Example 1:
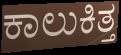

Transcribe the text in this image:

ಕಾಲುಕಿತ್ತ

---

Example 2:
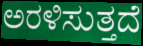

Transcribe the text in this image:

ಅರಳಿಸುತ್ತದೆ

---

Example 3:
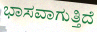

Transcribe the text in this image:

ಭಾಸವಾಗುತ್ತಿದೆ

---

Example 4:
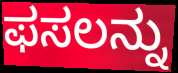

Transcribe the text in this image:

ಫಸಲನ್ನು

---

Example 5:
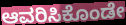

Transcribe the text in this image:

ಆವರಿಸಿಕೊಂಡೇ